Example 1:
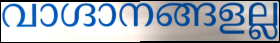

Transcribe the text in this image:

വാഗ്ദാനങ്ങളല്ല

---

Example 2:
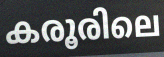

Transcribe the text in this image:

കരൂരിലെ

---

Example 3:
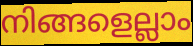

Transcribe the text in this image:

നിങ്ങളെല്ലാം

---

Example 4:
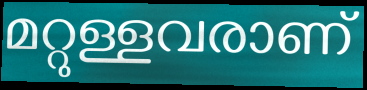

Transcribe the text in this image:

മറ്റുള്ളവരാണ്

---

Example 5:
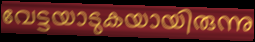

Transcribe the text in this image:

വേട്ടയാടുകയായിരുന്നു